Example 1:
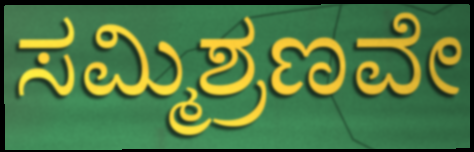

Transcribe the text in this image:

ಸಮ್ಮಿಶ್ರಣವೇ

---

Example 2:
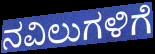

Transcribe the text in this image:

ನವಿಲುಗಳಿಗೆ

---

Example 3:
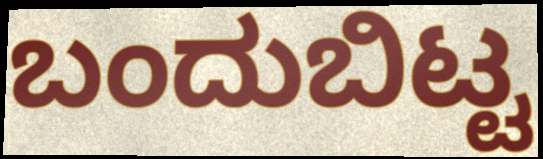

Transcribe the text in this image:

ಬಂದುಬಿಟ್ಟ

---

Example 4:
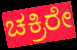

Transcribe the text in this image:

ಚಕ್ರಿರೇ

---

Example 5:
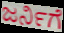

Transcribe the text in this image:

ಜರ್ನಿಗೆ